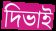
দিভাই